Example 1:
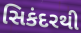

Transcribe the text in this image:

સિકંદરથી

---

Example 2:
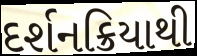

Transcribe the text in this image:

દર્શનક્રિયાથી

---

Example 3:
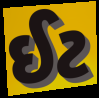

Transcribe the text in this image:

ઈટ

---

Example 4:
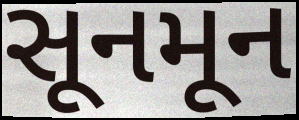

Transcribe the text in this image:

સૂનમૂન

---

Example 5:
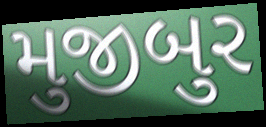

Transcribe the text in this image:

મુજીબુર